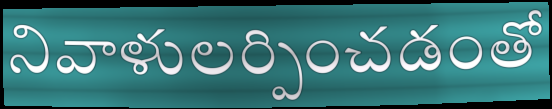
నివాళులర్పించడంతో